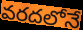
వరదలోనే